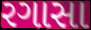
રગાસા